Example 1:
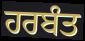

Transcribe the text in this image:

ਹਰਬੰਤ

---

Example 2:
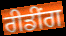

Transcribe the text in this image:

ਰੀਡੀਂਗ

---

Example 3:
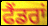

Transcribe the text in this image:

ਫੈਂਡਰਾਂ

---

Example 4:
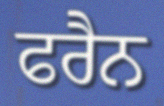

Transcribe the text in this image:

ਫਰੈਨ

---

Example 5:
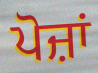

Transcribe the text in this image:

ਪੋਜ਼ਾਂ